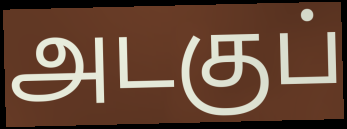
அடகுப்